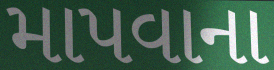
માપવાના